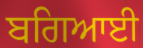
ਬਗਿਆਈ